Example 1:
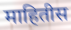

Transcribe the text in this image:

माहितीस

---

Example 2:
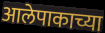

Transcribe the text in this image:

आलेपाकाच्या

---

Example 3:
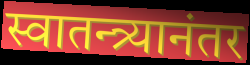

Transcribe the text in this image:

स्वातन्त्र्यानंतर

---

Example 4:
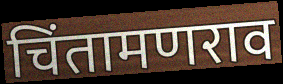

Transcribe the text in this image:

चिंतामणराव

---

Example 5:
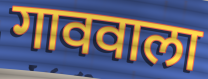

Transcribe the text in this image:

गाववाला